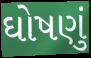
ઘોષણું